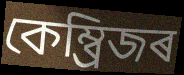
কেম্ব্ৰিজৰ